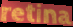
retina